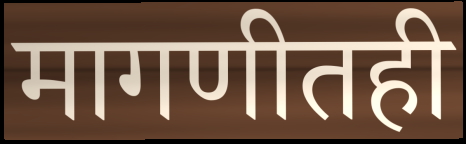
मागणीतही